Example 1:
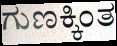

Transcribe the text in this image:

ಗುಣಕ್ಕಿಂತ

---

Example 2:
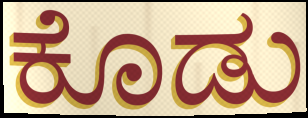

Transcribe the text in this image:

ಕೊಡು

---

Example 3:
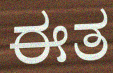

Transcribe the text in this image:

ಈತ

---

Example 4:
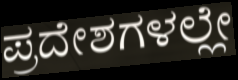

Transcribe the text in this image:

ಪ್ರದೇಶಗಳಲ್ಲೇ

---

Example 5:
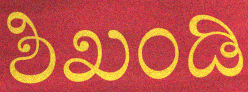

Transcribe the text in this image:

ಶಿಖಂಡಿ